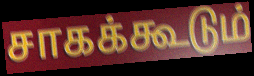
சாகக்கூடும்